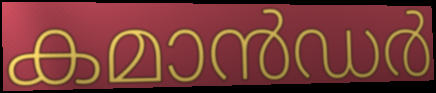
കമാൻഡർ